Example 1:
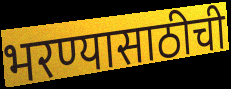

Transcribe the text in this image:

भरण्यासाठीची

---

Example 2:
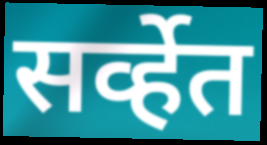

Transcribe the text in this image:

सर्व्हेत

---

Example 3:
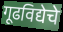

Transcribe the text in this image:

गूढविद्येचे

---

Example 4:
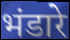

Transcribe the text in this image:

भंडारे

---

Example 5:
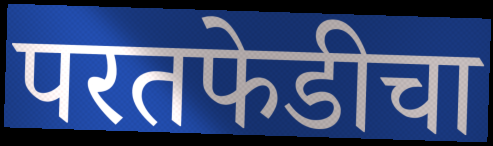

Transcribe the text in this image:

परतफेडीचा